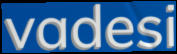
vadesi